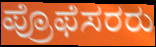
ಪ್ರೊಫೆಸರರು